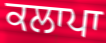
ਕਲਾਪਾ